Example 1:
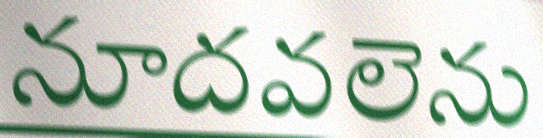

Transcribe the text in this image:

నూదవలెను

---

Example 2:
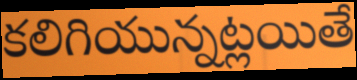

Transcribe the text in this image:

కలిగియున్నట్లయితే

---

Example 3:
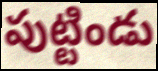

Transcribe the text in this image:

పుట్టిండు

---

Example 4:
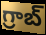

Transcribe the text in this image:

గ్రాబ్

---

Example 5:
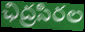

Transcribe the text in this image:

ఛిద్రసిరల